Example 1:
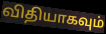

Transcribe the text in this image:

விதியாகவும்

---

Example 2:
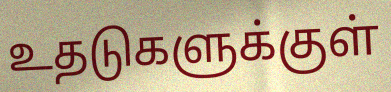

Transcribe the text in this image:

உதடுகளுக்குள்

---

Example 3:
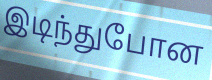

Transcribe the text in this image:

இடிந்துபோன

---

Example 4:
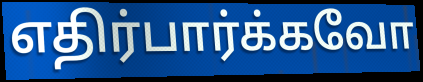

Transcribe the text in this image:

எதிர்பார்க்கவோ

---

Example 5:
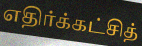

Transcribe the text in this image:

எதிர்க்கட்சித்